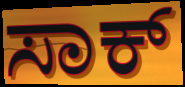
ಸಾಕ್